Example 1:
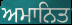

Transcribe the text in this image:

ਅਮਾਨਿਤ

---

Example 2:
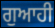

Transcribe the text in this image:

ਗੁਆਹੀ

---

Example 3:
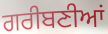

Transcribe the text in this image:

ਗਰੀਬਣੀਆਂ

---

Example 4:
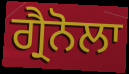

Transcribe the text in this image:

ਗ੍ਰੈਨੋਲਾ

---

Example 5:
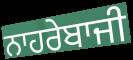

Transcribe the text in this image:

ਨਾਹਰੇਬਾਜੀ